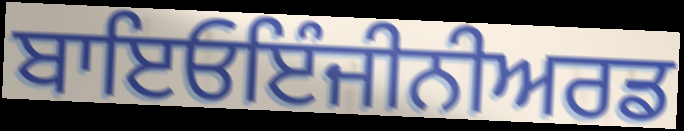
ਬਾਇਓਇੰਜੀਨੀਅਰਡ